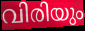
വിരിയും